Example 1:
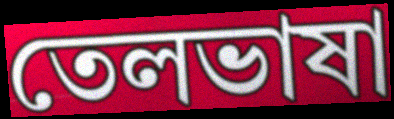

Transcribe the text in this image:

তেলভাষা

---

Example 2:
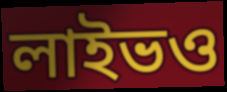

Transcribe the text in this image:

লাইভও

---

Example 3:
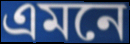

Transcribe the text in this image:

এমনে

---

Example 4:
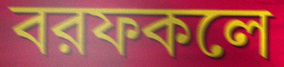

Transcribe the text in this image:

বরফকলে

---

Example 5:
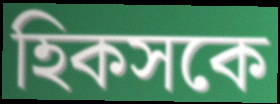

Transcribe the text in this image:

হিকসকে